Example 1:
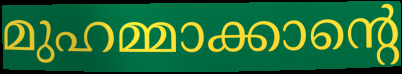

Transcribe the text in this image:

മുഹമ്മാക്കാന്റെ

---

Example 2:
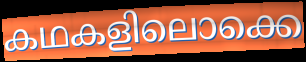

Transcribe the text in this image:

കഥകളിലൊക്കെ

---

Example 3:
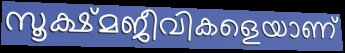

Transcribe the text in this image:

സൂക്ഷ്മജീവികളെയാണ്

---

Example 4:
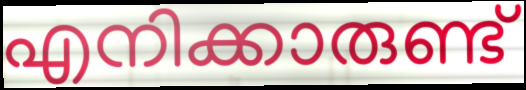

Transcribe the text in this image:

എനിക്കാരുണ്ട്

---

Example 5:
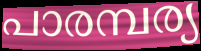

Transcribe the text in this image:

പാരമ്പര്യ